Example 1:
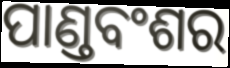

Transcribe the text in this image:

ପାଣ୍ଡବଂଶର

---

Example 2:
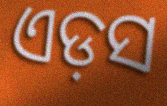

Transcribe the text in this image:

ଏଡ଼ସ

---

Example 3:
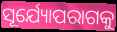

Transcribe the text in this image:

ସୂର୍ଯ୍ୟୋପରାଗକୁ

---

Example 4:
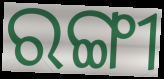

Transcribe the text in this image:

ରଙ୍ଗୀ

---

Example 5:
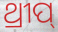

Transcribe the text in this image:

ଥ୍ରୀପ୍